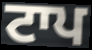
ਟਾਪ